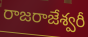
రాజరాజేశ్వరీ